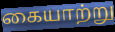
கையாற்று